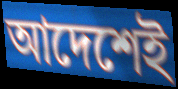
আদেশেই